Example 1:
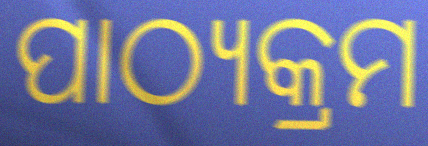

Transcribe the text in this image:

ପାଠ୍ୟକ୍ରମ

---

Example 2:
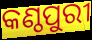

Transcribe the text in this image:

କଣ୍ଠପୁରୀ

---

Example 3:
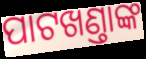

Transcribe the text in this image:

ପାଟଖଣ୍ତାଙ୍କ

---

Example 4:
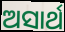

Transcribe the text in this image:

ଅସାର୍ଥ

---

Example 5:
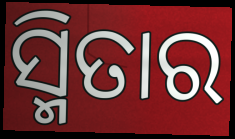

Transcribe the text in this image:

ସ୍ମିତାର